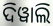
ଦିୱାଲି